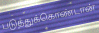
படுத்துக்கொண்டான்